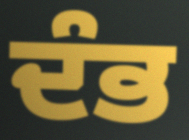
ਦੰਭ